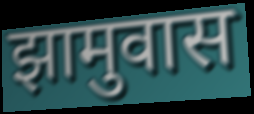
झामुवास